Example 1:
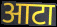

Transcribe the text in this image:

आटा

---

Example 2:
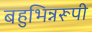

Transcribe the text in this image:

बहुभिन्नरूपी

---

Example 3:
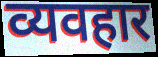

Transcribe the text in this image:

व्यवहार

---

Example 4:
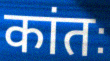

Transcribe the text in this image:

कांतः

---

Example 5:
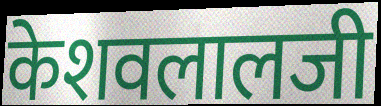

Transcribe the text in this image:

केशवलालजी